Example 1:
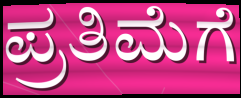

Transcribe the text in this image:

ಪ್ರತಿಮೆಗೆ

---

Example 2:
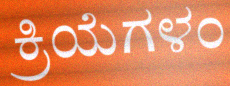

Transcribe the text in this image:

ಕ್ರಿಯೆಗಳಂ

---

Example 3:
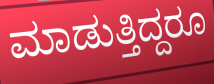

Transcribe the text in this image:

ಮಾಡುತ್ತಿದ್ದರೂ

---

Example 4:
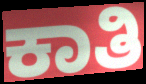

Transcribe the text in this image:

ಕಾತಿ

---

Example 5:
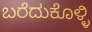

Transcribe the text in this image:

ಬರೆದುಕೊಳ್ಳಿ